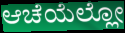
ಆಚೆಯೆಲ್ಲೋ